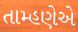
તામ્હણેએ